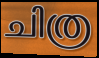
ചിത്ര